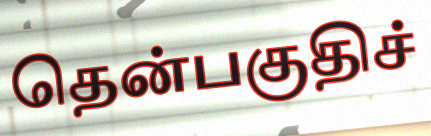
தென்பகுதிச்